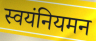
स्वयंनियमन